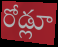
రోడ్లూ